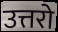
उत्तरो